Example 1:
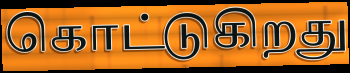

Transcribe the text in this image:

கொட்டுகிறது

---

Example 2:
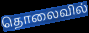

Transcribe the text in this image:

தொலைவில்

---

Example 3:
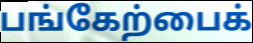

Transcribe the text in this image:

பங்கேற்பைக்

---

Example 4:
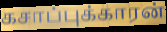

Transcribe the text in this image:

கசாப்புக்காரன்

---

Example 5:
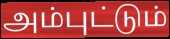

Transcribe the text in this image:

அம்புட்டும்